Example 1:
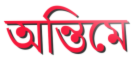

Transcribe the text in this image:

অন্তিমে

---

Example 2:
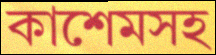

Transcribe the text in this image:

কাশেমসহ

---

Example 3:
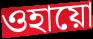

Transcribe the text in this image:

ওহায়ো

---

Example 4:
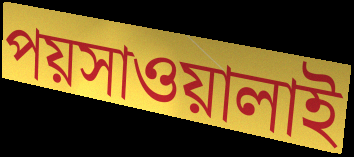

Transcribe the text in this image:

পয়সাওয়ালাই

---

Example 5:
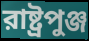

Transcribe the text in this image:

রাষ্ট্রপুঞ্জ